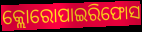
କ୍ଲୋରୋପାଇରିଫୋସ